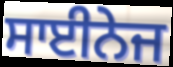
ਸਾਈਨੇਜ